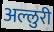
अल्लुरी